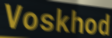
Voskhod